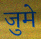
जुमे